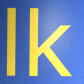
lk